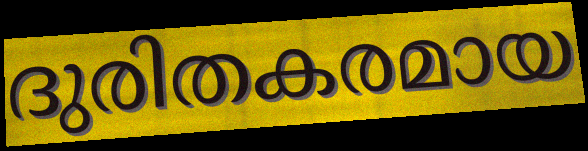
ദുരിതകരമായ